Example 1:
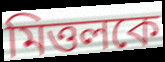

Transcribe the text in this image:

মিত্তলকে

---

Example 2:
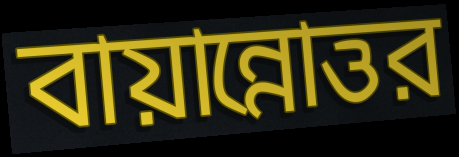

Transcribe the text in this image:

বায়ান্নোত্তর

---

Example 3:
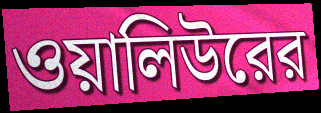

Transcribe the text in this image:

ওয়ালিউরের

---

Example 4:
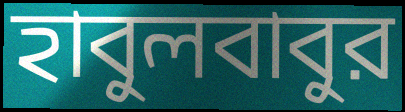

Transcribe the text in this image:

হাবুলবাবুর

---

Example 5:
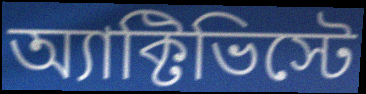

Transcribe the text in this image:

অ্যাক্টিভিস্টে